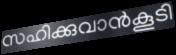
സഹിക്കുവാൻകൂടി